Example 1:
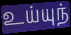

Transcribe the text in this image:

உய்யுந்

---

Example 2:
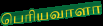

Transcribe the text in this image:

பெரியவாளா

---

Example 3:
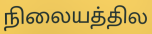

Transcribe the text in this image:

நிலையத்தில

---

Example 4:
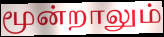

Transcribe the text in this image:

மூன்றாலும்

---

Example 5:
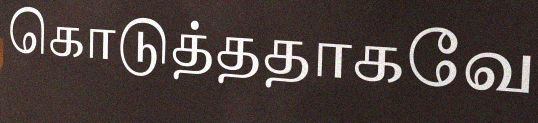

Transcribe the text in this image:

கொடுத்ததாகவே